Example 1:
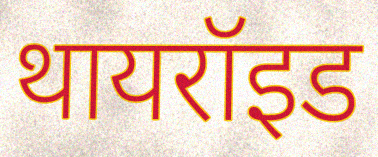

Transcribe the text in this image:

थायरॉइड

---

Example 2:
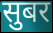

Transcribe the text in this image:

सुबर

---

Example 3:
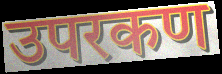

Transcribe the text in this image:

उपरकण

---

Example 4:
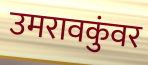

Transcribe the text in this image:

उमरावकुंवर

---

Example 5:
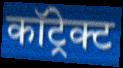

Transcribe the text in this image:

कॉट्रेक्ट